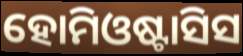
ହୋମିଓଷ୍ଟାସିସ